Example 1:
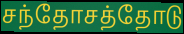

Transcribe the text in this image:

சந்தோசத்தோடு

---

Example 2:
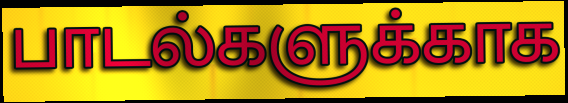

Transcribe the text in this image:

பாடல்களுக்காக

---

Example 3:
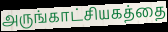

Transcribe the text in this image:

அருங்காட்சியகத்தை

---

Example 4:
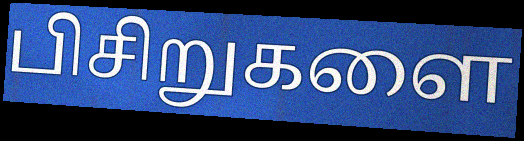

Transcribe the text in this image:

பிசிறுகளை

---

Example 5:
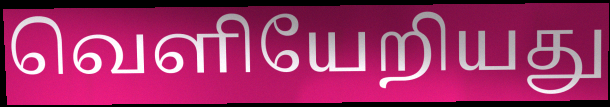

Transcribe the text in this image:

வெளியேறியது